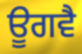
ਊਗਵੈ